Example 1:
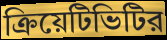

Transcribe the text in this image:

ক্রিয়েটিভিটির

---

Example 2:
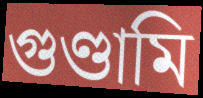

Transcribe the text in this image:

গুণ্ডামি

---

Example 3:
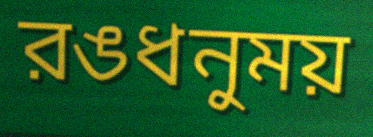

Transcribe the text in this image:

রঙধনুময়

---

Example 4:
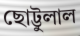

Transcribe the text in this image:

ছোট্টুলাল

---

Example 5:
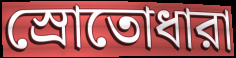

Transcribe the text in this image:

স্রোতোধারা